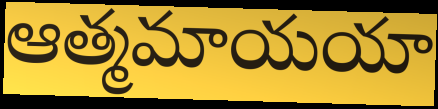
ఆత్మమాయయా